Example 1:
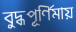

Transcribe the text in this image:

বুদ্ধপূর্ণিমায়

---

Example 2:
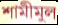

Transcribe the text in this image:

শামীমুল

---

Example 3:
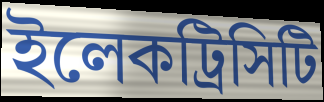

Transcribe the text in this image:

ইলেকট্রিসিটি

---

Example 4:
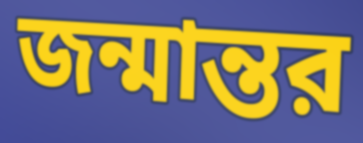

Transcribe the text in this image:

জন্মান্তর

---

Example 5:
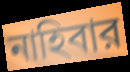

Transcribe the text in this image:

নাহিবার